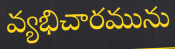
వ్యభిచారమును